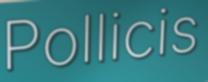
Pollicis